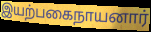
இயற்பகைநாயனார்